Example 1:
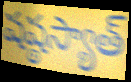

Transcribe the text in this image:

షష్ఠస్యాత్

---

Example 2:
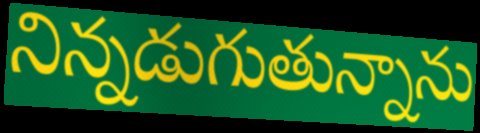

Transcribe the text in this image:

నిన్నడుగుతున్నాను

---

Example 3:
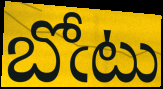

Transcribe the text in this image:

బోఁటు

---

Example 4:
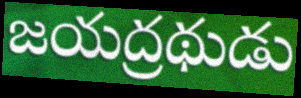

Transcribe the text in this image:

జయద్రథుడు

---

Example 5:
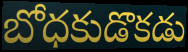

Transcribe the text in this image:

బోధకుడొకడు